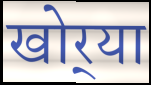
खोर्या